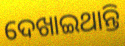
ଦେଖାଇଥାନ୍ତି